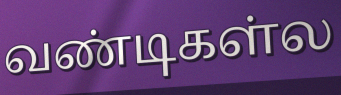
வண்டிகள்ல